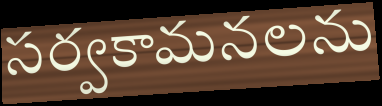
సర్వకామనలను